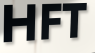
HFT